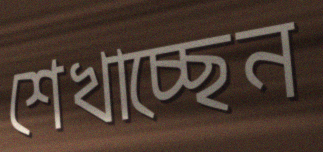
শেখাচ্ছেন